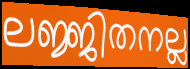
ലജ്ജിതനല്ല